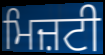
ਮਿਜ਼ਟੀ